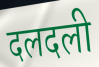
दलदली